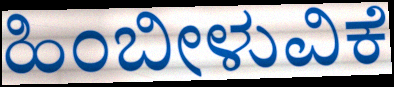
ಹಿಂಬೀಳುವಿಕೆ